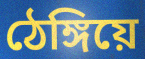
ঠেঙ্গিয়ে